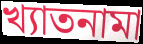
খ্যাতনামা